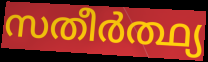
സതീർത്ഥ്യ